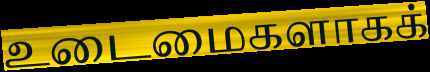
உடைமைகளாகக்